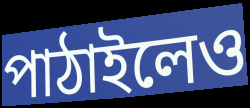
পাঠাইলেও